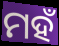
ମହଁ